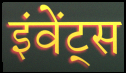
इंवेंट्स